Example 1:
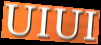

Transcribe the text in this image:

UIUI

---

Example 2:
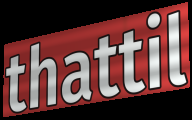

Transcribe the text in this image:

thattil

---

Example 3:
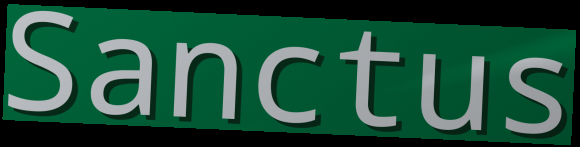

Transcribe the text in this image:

Sanctus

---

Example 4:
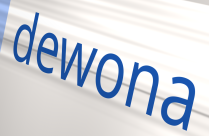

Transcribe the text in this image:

dewona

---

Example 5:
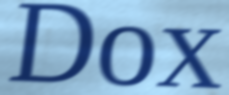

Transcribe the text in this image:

Dox